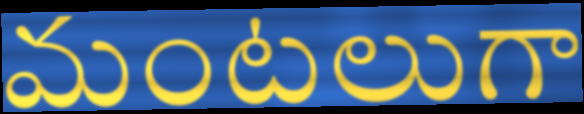
మంటలుగా